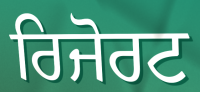
ਰਿਜੋਰਟ